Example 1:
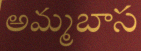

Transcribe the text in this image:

అమ్మబాస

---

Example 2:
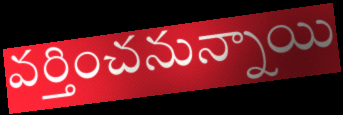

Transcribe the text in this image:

వర్తించనున్నాయి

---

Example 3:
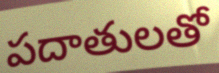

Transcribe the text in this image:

పదాతులతో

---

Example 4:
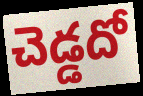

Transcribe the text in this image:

చెడ్డదో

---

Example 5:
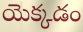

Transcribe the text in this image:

యెక్కడం